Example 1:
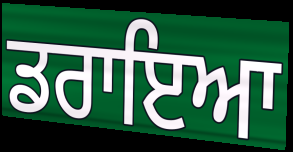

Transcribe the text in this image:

ਡਰਾਇਆ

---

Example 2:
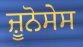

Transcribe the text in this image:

ਜ਼ੂਨੋਸੇਸ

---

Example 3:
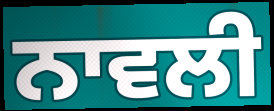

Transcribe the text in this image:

ਨਾਵਲੀ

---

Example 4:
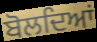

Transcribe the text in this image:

ਬੋਲਦਿਆਂ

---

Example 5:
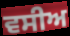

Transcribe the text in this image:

ਵਸੀਅ